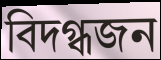
বিদগ্ধজন